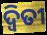
ଦ୍ୱିତୀ